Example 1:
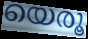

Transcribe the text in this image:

യെരൂ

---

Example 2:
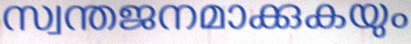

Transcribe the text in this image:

സ്വന്തജനമാക്കുകയും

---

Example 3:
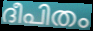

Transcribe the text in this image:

ദീപിതം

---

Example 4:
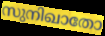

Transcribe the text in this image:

സുനിഖാതോ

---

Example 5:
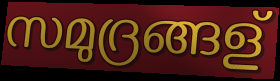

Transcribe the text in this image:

സമുദ്രങ്ങള്